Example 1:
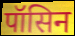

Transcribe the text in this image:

पॉसिन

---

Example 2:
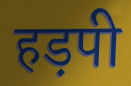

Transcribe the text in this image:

हड़पी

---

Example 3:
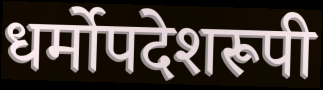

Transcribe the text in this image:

धर्मोपदेशरूपी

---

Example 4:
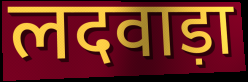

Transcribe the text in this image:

लदवाड़ा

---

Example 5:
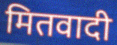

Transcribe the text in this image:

मितवादी